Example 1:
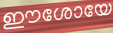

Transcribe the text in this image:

ഈശോയേ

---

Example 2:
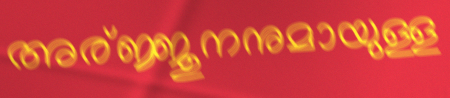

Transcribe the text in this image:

അര്ജ്ജുനനുമായുള്ള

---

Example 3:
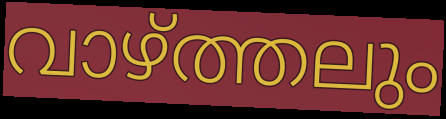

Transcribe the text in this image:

വാഴ്ത്തലും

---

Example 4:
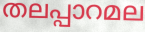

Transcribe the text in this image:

തലപ്പാറമല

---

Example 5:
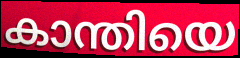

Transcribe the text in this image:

കാന്തിയെ